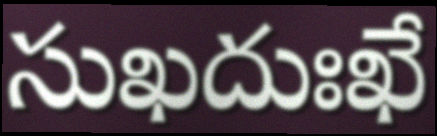
సుఖదుఃఖే